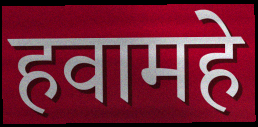
हवामहे